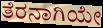
ತೆರನಾಗಿಯೇ